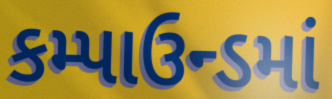
કમ્પાઉન્ડમાં